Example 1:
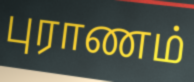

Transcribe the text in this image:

புராணம்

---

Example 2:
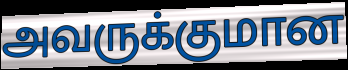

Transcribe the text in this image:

அவருக்குமான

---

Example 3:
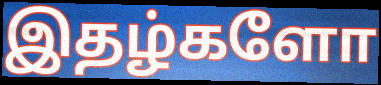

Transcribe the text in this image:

இதழ்களோ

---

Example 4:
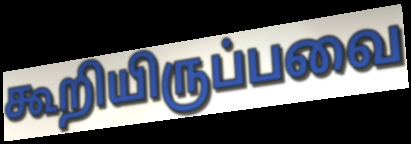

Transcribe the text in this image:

கூறியிருப்பவை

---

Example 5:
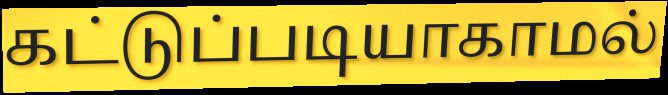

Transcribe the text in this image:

கட்டுப்படியாகாமல்